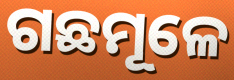
ଗଛମୂଳେ